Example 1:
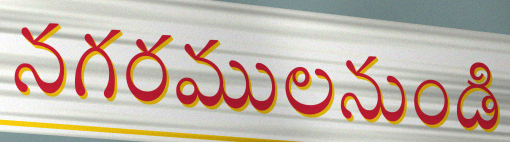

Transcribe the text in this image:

నగరములనుండి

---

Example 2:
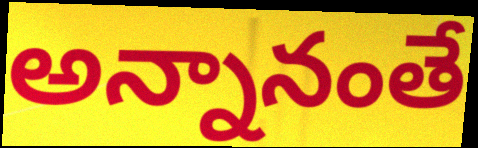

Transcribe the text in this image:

అన్నానంతే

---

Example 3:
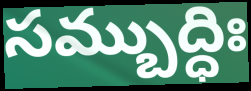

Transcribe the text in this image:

సమ్బుద్ధిః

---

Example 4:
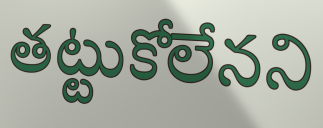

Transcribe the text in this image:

తట్టుకోలేనని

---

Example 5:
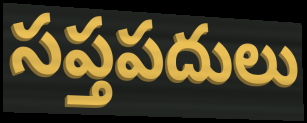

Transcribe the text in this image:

సప్తపదులు